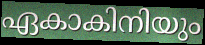
ഏകാകിനിയും